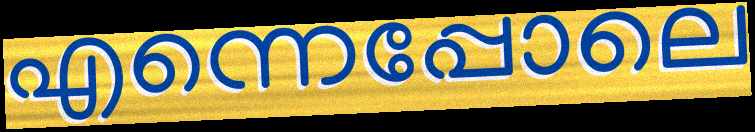
എന്നെപ്പോലെ